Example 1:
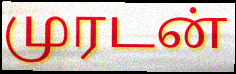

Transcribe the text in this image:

முரடன்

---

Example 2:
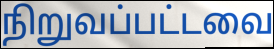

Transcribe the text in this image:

நிறுவப்பட்டவை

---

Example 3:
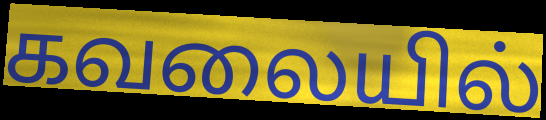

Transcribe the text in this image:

கவலையில்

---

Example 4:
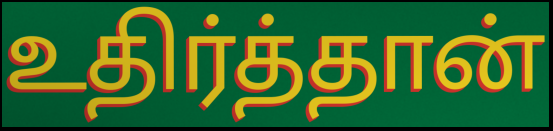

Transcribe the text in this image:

உதிர்த்தான்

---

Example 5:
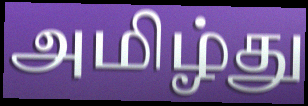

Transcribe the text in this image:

அமிழ்து